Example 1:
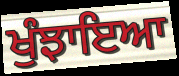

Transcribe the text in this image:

ਖੁੰਝਾਇਆ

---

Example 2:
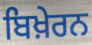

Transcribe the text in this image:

ਬਿਖ਼ੇਰਨ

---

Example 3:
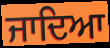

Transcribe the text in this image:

ਜਾਦਿਆ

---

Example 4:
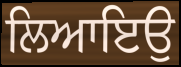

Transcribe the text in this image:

ਲਿਆਇਉ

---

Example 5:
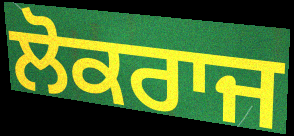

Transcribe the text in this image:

ਲੋਕਰਾਜ